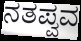
ನತಪ್ವವ